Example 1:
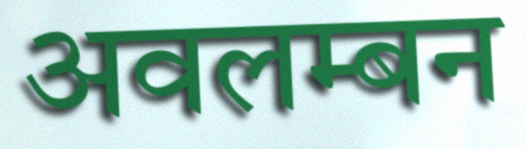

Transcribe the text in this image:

अवलम्बन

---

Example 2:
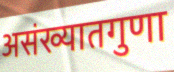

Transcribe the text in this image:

असंख्यातगुणा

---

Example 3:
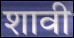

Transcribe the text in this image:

शावी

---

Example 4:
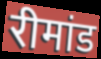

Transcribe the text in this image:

रीमांड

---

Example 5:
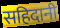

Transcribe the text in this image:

सहिदानी